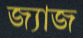
জ্যাজ